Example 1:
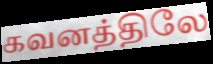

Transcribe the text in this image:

கவனத்திலே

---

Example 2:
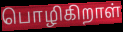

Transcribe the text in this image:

பொழிகிறாள்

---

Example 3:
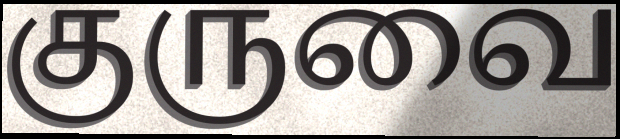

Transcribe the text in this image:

குருவை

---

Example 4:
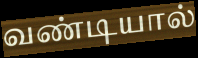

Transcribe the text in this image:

வண்டியால்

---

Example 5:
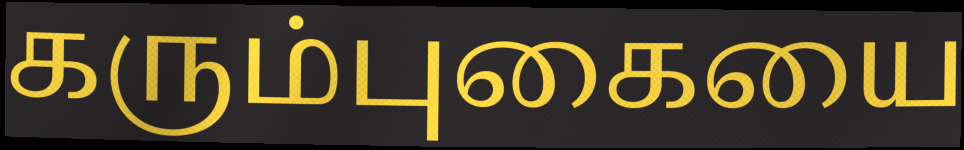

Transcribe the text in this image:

கரும்புகையை